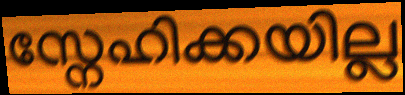
സ്നേഹിക്കയില്ല